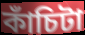
কাঁচিটা